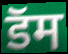
डॅम